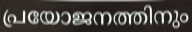
പ്രയോജനത്തിനും